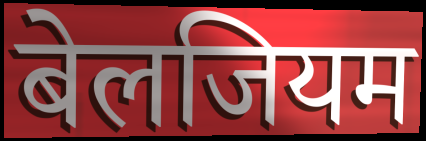
बेलजियम